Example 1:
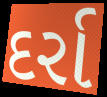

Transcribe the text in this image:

દર્રા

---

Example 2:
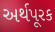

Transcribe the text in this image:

અર્થપૂરક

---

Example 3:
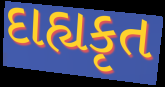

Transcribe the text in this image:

દાહ્યકૃત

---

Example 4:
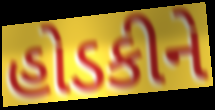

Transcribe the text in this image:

હોડકીને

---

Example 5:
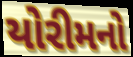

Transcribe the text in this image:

યોરીમનો